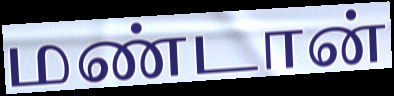
மண்டான்